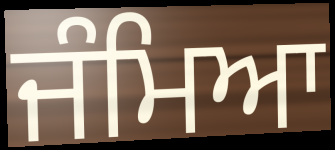
ਜੰਮਿਆ